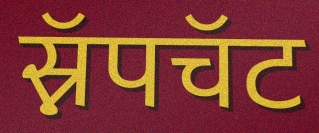
स्नॅपचॅट